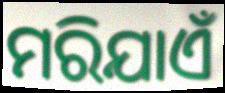
ମରିଯାଏଁ